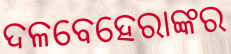
ଦଳବେହେରାଙ୍କର